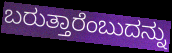
ಬರುತ್ತಾರೆಂಬುದನ್ನು